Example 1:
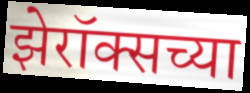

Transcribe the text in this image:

झेरॉक्सच्या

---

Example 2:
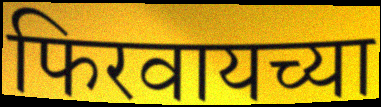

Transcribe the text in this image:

फिरवायच्या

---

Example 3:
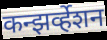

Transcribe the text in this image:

कन्झर्व्हेशन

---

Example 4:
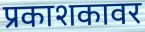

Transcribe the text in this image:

प्रकाशकावर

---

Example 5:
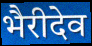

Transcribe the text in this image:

भैरीदेव